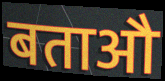
बताऔ